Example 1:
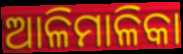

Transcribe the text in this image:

ଆଳିମାଳିକା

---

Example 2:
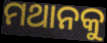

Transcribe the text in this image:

ମଥାନକୁ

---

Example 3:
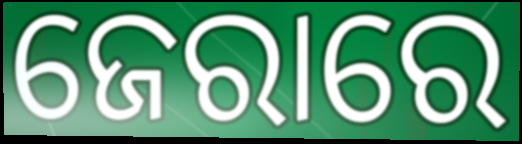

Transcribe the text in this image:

ଜେରାରେ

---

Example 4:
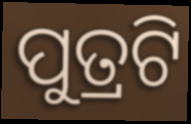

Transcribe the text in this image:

ପୁତ୍ରଟି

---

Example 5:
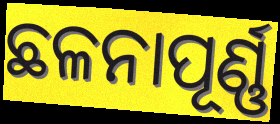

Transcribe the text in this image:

ଛଳନାପୂର୍ଣ୍ଣ